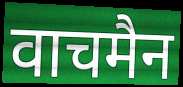
वाचमैन